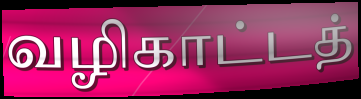
வழிகாட்டத்